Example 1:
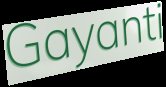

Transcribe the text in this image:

Gayanti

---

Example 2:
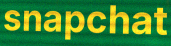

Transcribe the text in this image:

snapchat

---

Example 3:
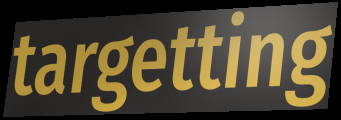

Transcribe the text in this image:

targetting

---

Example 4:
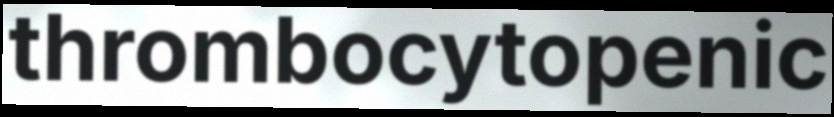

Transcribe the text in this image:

thrombocytopenic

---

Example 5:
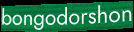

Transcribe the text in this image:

bongodorshon